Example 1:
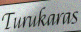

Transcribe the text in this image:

Turukaras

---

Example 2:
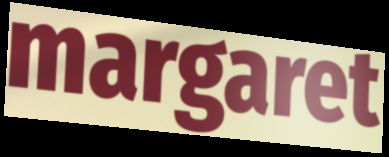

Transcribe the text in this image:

margaret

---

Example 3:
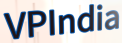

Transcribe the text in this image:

VPIndia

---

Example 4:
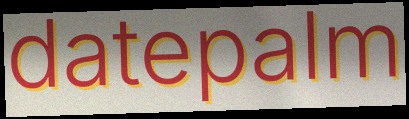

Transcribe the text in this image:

datepalm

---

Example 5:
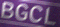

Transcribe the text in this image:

BGCL